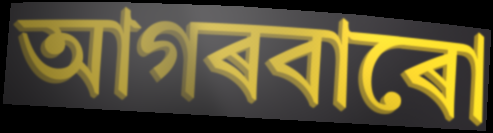
আগৰবাৰো